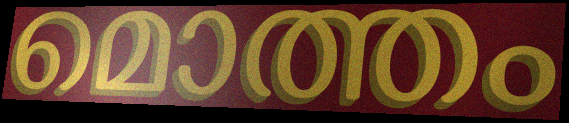
മൊത്തം